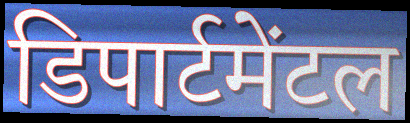
डिपार्टमेंटल